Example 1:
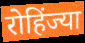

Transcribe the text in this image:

रोहिंज्या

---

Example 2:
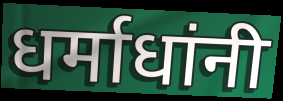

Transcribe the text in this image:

धर्माधांनी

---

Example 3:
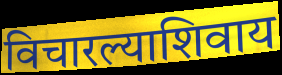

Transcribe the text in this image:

विचारल्याशिवाय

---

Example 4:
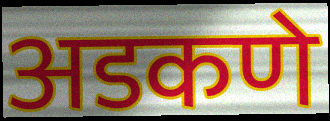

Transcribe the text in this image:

अडकणे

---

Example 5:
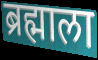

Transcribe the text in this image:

ब्रह्माला